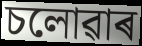
চলোৱাৰ